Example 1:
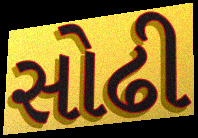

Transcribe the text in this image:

સોઢી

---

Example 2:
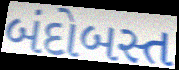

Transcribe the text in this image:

બંદોબસ્ત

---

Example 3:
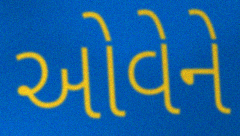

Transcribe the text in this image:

ઓવેને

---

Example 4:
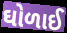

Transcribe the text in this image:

ઘોળાઈ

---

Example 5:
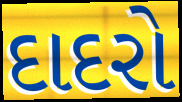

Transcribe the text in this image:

દાદરો